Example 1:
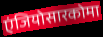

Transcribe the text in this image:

एंजियोसारकोमा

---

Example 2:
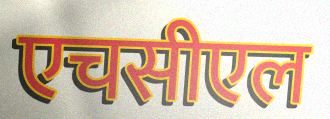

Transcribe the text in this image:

एचसीएल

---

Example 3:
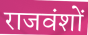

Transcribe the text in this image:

राजवंशों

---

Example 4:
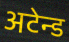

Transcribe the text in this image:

अटेन्ड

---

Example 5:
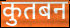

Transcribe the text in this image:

कुतबन